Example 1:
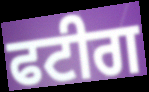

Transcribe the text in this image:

ਫਟੀਗ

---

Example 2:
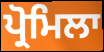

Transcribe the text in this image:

ਪ੍ਰੋਮਿਲਾ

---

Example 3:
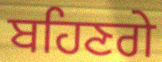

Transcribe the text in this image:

ਬਹਿਣਗੇ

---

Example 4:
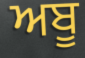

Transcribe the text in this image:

ਅਬੂ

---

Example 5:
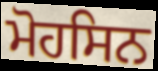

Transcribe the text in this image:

ਮੋਹਸਿਨ